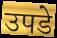
उपडे